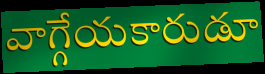
వాగ్గేయకారుడూ